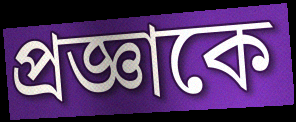
প্রজ্ঞাকে